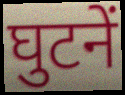
घुटनें